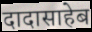
दादासाहेब